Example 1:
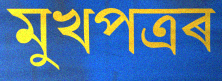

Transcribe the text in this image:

মুখপত্ৰৰ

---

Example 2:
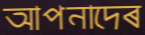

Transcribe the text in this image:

আপনাদেৰ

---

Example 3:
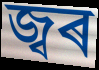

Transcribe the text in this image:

জ্বৰ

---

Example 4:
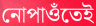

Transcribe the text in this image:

নোপাওঁতেই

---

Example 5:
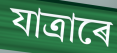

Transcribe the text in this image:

যাত্ৰাৰে